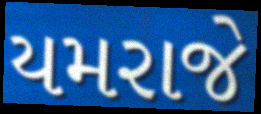
યમરાજે